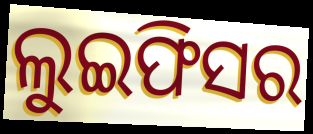
ଲୁଇଫିସର